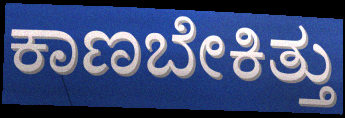
ಕಾಣಬೇಕಿತ್ತು